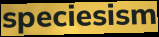
speciesism